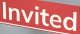
Invited